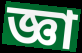
জ্ঞা